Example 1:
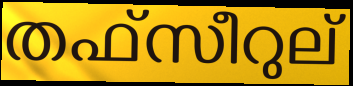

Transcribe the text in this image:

തഫ്സീറുല്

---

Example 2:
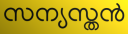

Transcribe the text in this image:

സന്യസ്തൻ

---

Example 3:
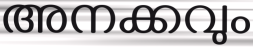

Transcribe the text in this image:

അനക്കവും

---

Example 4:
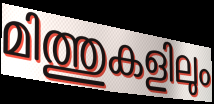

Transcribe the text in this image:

മിത്തുകളിലും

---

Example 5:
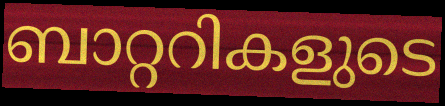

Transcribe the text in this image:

ബാറ്ററികളുടെ